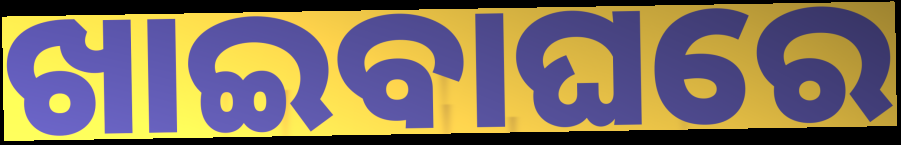
ଖାଇବାଘରେ